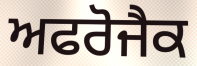
ਅਫਰੋਜੈਕ